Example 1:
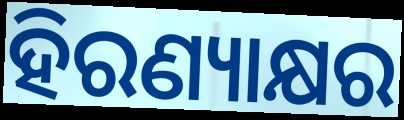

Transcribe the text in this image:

ହିରଣ୍ୟାକ୍ଷର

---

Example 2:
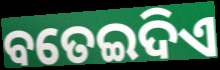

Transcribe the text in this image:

ବତେଇଦିଏ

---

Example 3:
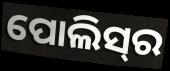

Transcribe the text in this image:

ପୋଲିସ୍‍ର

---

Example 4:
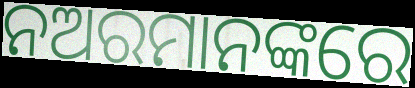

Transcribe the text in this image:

ନଅରମାନଙ୍କରେ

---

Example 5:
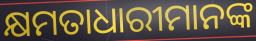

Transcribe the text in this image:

କ୍ଷମତାଧାରୀମାନଙ୍କ